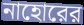
নাহোরের